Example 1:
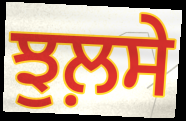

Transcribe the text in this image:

ਝੁਲ਼ਸੇ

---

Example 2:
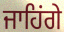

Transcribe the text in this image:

ਜਾਹਿਂਗੇ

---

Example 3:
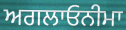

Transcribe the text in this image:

ਅਗਲਾਓਨੀਮਾ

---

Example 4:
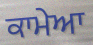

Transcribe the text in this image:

ਕਾਮੇਆ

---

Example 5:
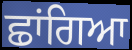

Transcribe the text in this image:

ਛਾਂਗਿਆ